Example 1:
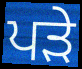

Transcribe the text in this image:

ਪੜੇ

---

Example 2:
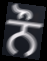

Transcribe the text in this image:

ਨੌ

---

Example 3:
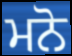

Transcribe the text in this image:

ਮਨੋ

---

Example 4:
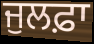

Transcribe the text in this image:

ਜੁਲਫ਼ਾ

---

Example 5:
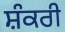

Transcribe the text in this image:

ਸ਼ੰਕਰੀ